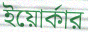
ইয়োর্কার